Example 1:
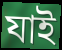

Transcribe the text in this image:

যাই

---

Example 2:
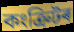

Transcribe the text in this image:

কংক্ৰিটৰ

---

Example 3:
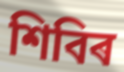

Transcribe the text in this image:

শিবিৰ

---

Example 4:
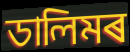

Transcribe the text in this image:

ডালিমৰ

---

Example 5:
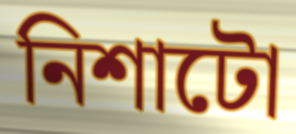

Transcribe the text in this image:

নিশাটো